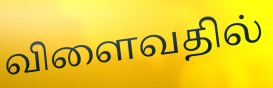
விளைவதில்